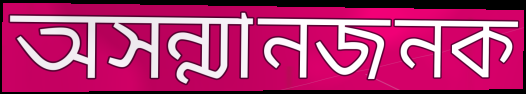
অসন্মানজনক